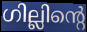
ഗില്ലിന്റെ